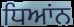
ਧਿਆਂਨ